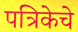
पत्रिकेचे